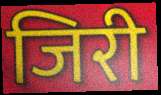
जिरी